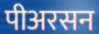
पीअरसन